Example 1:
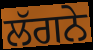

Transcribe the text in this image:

ਲੱਗਨੇ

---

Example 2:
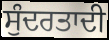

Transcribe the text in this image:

ਸੁੰਦਰਤਾਦੀ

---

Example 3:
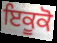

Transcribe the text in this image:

ਇਕੂਕੋ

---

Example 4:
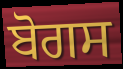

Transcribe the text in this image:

ਬੋਗਸ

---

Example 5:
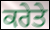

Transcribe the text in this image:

ਕਰੇਤੇ